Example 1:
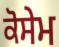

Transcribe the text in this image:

ਕੋਸੇਮ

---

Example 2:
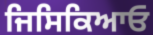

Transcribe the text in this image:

ਜਿਸਿਕਿਆਓ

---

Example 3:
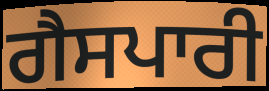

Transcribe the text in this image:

ਗੈਸਪਾਰੀ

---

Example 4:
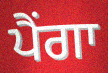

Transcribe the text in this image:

ਪੈਂਗਾ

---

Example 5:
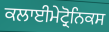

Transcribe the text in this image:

ਕਲਾਈਮੇਟ੍ਰੋਨਿਕਸ